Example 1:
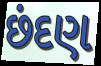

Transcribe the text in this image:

છંદણ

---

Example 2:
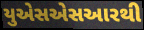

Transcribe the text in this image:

યુએસએસઆરથી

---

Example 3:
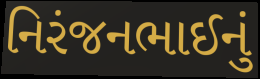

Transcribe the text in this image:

નિરંજનભાઈનું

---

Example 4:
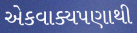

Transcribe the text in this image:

એકવાક્યપણાથી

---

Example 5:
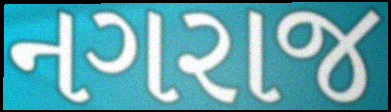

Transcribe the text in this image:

નગરાજ